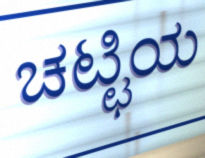
ಚಟ್ಟಿಯ